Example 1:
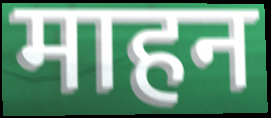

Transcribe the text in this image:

माहन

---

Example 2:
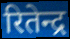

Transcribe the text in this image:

रितेन्द्र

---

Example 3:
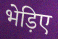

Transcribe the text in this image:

भेड़िए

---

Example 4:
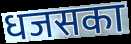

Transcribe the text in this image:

धजसका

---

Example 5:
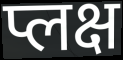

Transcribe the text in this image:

प्लक्ष